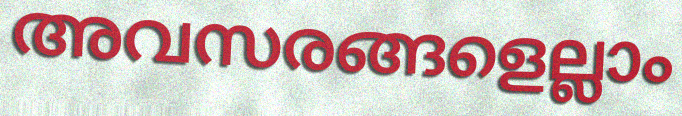
അവസരങ്ങളെല്ലാം